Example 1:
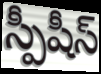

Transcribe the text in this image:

స్పీషీస్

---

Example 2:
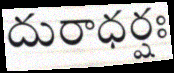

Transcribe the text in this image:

దురాధర్షః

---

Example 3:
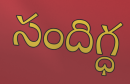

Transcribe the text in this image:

సందిగ్ధ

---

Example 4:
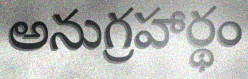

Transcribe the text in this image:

అనుగ్రహార్థం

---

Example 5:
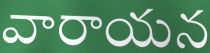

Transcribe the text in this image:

వారాయన